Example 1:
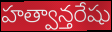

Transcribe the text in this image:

హత్వాన్తరేషు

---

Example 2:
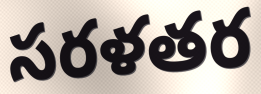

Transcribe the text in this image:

సరళతర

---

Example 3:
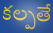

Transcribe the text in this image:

కల్పతే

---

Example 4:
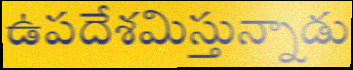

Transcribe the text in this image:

ఉపదేశమిస్తున్నాడు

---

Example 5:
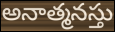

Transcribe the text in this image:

అనాత్మనస్తు